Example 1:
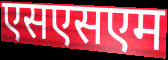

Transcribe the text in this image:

एसएसएम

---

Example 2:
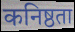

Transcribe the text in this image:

कनिष्ठता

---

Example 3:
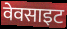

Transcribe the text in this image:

वेवसाइट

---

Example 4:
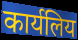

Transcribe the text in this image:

कार्यलिय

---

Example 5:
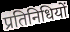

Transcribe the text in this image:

प्रतिनिधियों